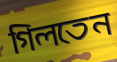
গিলতেন